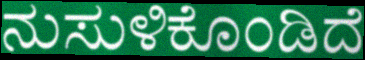
ನುಸುಳಿಕೊಂಡಿದೆ